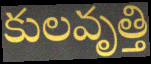
కులవృత్తి